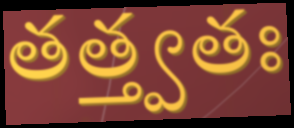
తత్త్వతః